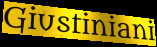
Giustiniani